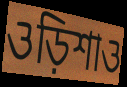
ওড়িশাও